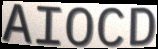
AIOCD